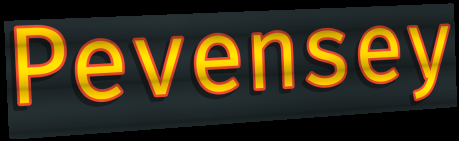
Pevensey